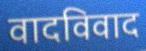
वादविवाद